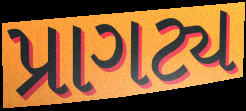
પ્રાગટ્ય